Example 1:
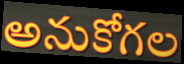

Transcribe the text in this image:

అనుకోగల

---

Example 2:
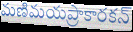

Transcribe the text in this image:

మణిమయప్రాకారకన్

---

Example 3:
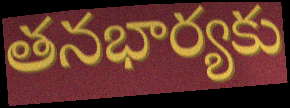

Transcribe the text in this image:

తనభార్యకు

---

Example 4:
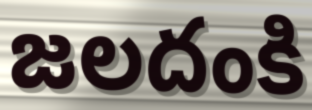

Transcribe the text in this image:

జలదంకి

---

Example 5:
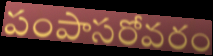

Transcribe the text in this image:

పంపాసరోవరం